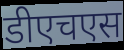
डीएचएस